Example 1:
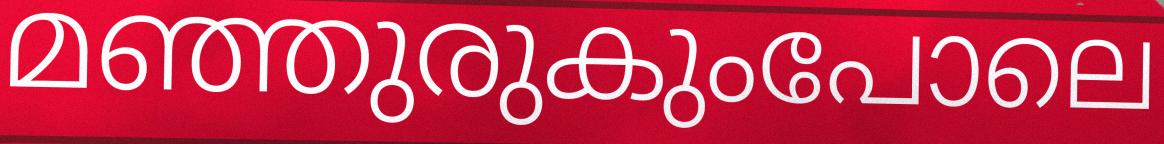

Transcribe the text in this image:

മഞ്ഞുരുകുംപോലെ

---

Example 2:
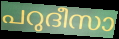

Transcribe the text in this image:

പറുദീസാ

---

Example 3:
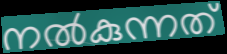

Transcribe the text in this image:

നൽകുന്നത്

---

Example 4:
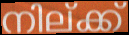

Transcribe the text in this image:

നില്ക്ക്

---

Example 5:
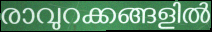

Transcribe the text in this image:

രാവുറക്കങ്ങളിൽ